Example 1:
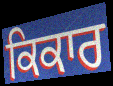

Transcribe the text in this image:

ਕਿਕਾਰ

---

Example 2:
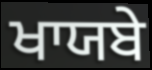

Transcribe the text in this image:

ਖਾਯਬੇ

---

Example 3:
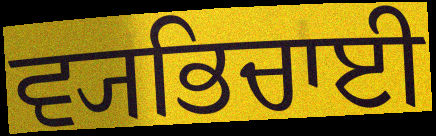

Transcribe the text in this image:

ਵ੍ਯਭਿਚਾਈ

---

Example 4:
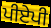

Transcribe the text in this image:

ਪੀਏਪੀ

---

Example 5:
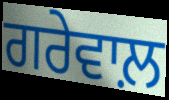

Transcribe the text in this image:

ਗਰੇਵਾਲ਼